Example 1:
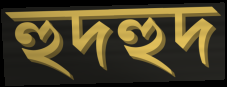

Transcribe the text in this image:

হুদহুদ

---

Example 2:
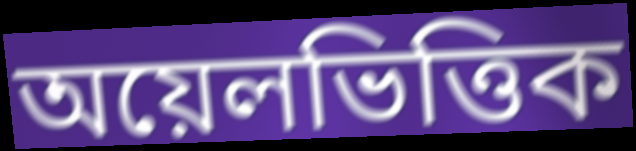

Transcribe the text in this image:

অয়েলভিত্তিক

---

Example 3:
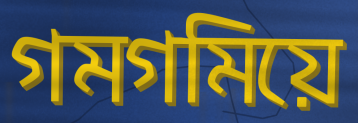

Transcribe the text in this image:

গমগমিয়ে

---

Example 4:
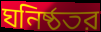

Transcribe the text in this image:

ঘনিষ্ঠতর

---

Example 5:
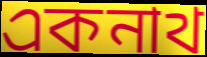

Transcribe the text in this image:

একনাথ